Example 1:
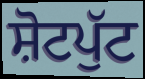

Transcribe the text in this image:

ਸ਼ੋਟਪੁੱਟ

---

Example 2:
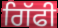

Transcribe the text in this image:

ਗਿੱਫੀ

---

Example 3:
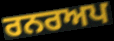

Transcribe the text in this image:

ਰਨਰਅਪ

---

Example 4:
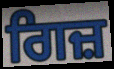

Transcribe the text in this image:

ਗਿਜ਼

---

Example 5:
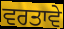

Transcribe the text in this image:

ਵਰਤਾਵੇ